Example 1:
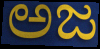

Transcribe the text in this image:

ಅಜ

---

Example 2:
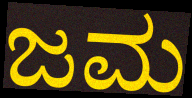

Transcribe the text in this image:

ಜಮ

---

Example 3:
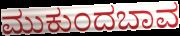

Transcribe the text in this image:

ಮುಕುಂದಬಾವ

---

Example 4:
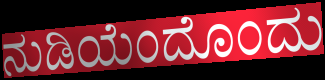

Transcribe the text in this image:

ನುಡಿಯೆಂದೊಂದು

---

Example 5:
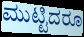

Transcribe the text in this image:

ಮುಟ್ಟಿದರೂ